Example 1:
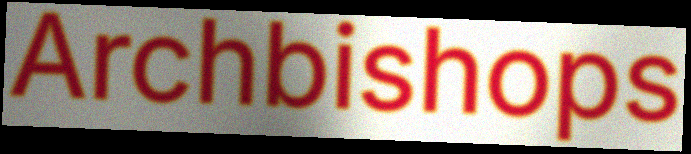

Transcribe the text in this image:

Archbishops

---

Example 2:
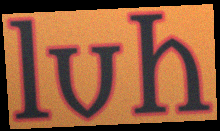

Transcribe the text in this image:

luh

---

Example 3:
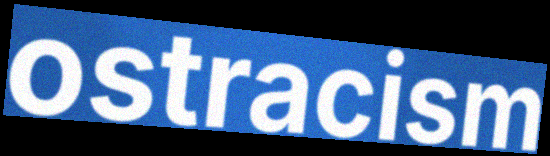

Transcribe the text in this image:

ostracism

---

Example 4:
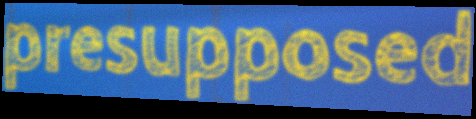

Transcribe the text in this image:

presupposed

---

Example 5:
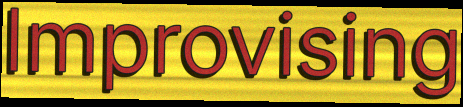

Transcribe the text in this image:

Improvising